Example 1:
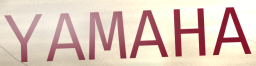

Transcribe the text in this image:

YAMAHA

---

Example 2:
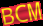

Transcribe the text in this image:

BCM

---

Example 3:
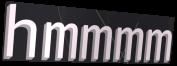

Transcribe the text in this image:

hmmmm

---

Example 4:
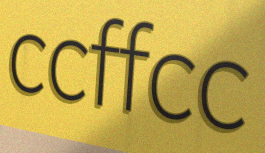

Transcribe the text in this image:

ccffcc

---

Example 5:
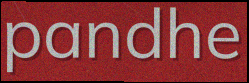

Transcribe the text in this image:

pandhe